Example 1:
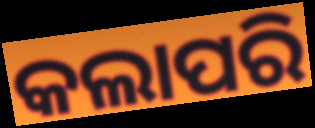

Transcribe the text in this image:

କଲାପରି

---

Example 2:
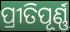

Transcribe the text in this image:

ପ୍ରୀତିପୂର୍ଣ୍ଣ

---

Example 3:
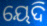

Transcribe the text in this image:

ୟେଦି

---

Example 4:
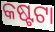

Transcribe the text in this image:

କଷ୍ଟଟା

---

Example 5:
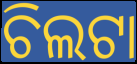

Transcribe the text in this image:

ଚିଲଟା